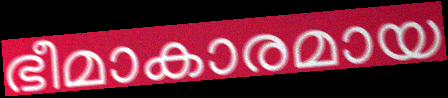
ഭീമാകാരമായ